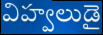
విహ్వలుడై